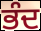
ਭੰਦ